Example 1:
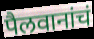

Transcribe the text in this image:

पैलवानांचं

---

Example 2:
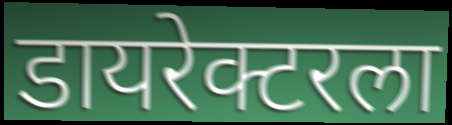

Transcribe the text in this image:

डायरेक्टरला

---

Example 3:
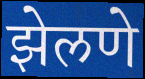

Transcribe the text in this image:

झेलणे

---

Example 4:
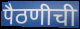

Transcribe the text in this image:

पैठणीची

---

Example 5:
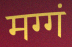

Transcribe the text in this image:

मग्गं